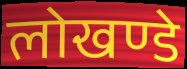
लोखण्डे